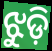
ଝୁଡ଼ି